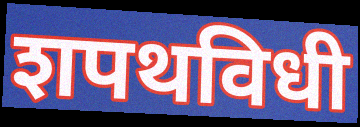
शपथविधी